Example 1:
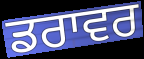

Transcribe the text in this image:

ਡਰਾਵਰ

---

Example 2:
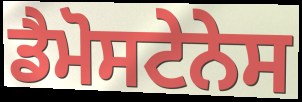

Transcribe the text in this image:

ਡੈਮੋਸਟੇਨੇਸ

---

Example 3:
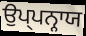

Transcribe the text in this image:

ਉਪ੍ਪਨ੍ਨਾਯ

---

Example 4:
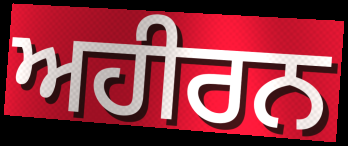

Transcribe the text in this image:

ਅਹੀਰਨ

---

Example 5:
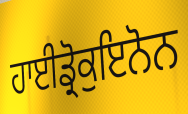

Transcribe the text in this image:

ਹਾਈਡ੍ਰੋਕੁਇਨੋਨ